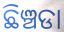
ଛିଞ୍ଚଡା